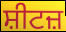
ਸ਼ੀਟਜ਼